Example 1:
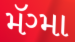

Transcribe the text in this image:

મૅગ્મા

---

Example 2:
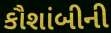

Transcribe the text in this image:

કૌશાંબીની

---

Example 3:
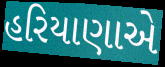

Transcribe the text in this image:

હરિયાણાએ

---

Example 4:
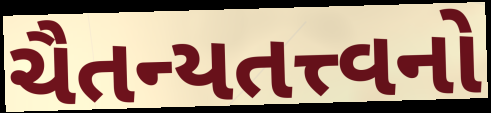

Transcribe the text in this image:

ચૈતન્યતત્ત્વનો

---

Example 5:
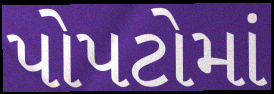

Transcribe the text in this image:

પોપટોમાં